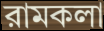
রামকলা